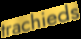
trachieds